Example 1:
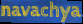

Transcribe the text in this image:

navachya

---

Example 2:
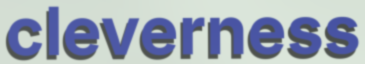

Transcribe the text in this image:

cleverness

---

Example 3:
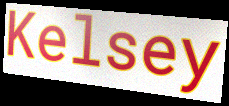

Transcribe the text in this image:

Kelsey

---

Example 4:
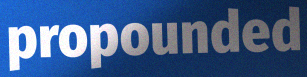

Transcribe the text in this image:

propounded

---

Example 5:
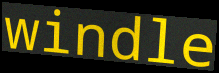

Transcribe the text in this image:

windle